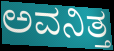
ಅವನಿತ್ತ